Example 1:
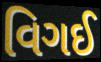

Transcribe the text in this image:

વિગઈ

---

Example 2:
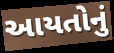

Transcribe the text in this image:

આયતોનું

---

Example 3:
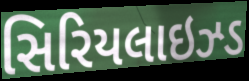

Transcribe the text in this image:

સિરિયલાઇઝ્ડ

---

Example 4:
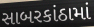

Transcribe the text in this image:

સાબરકાંઠામાં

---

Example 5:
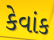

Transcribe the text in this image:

કેવાંક